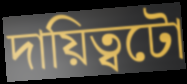
দায়িত্বটো